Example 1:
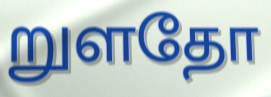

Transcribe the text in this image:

றுளதோ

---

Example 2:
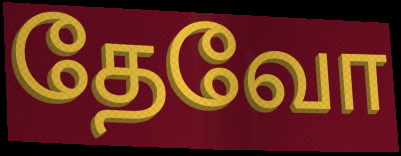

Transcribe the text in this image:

தேவோ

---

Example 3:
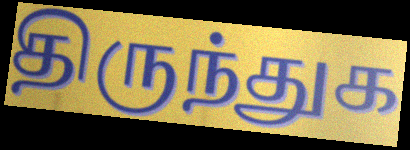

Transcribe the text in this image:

திருந்துக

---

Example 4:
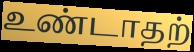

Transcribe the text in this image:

உண்டாதற்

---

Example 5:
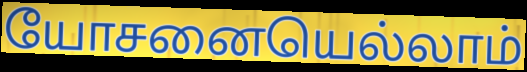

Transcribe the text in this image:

யோசனையெல்லாம்